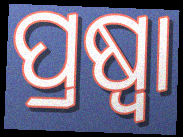
ପ୍ରଷ୍ୱା